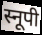
स्नूपी